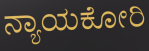
ನ್ಯಾಯಕೋರಿ